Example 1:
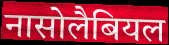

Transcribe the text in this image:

नासोलैबियल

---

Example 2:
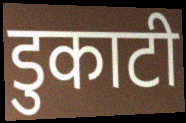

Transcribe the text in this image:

डुकाटी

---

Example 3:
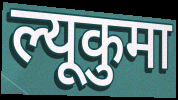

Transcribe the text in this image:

ल्यूकुमा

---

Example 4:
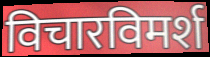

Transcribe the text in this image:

विचारविमर्श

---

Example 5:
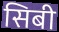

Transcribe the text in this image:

सिबी